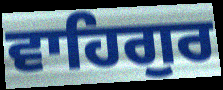
ਵਾਹਿਗੁਰ